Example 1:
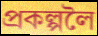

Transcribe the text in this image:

প্ৰকল্পলৈ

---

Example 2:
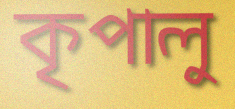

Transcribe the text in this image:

কৃপালু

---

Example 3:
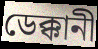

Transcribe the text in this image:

ডেক্কানী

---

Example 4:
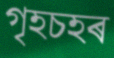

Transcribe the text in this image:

গৃহচহৰ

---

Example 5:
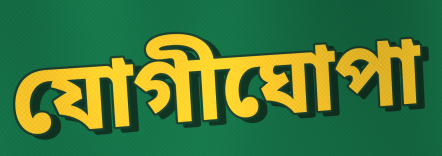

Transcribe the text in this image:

যোগীঘোপা